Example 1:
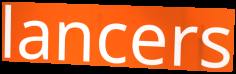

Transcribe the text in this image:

lancers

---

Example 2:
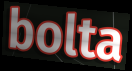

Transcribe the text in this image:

bolta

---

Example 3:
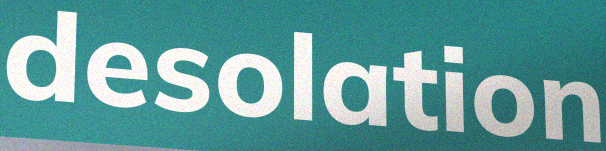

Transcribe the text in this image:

desolation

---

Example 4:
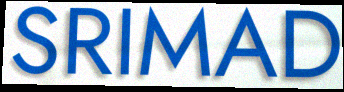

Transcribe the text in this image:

SRIMAD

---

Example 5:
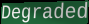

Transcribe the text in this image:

Degraded